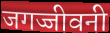
जगज्जीवनी